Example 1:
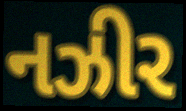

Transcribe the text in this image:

નઝીર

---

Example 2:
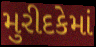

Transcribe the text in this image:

મુરીદકેમાં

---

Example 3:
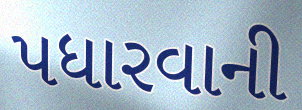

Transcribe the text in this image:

પધારવાની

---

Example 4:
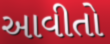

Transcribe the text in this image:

આવીતો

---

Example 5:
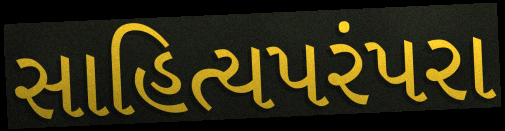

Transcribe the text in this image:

સાહિત્યપરંપરા